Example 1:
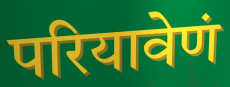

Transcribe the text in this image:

परियावेणं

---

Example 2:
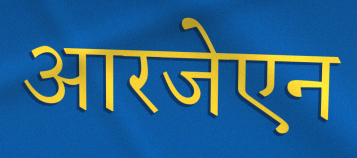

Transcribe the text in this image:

आरजेएन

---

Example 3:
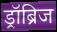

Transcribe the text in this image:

ड्रॉब्रिज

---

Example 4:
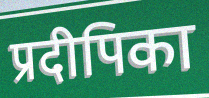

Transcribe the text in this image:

प्रदीपिका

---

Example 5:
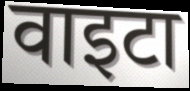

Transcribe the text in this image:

वाइटा